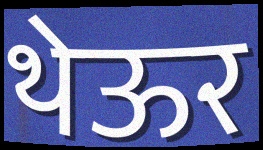
थेऊर